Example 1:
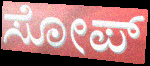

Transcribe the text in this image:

ಸೋಪ್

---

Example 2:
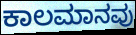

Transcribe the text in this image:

ಕಾಲಮಾನವು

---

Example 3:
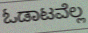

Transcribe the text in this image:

ಓಡಾಟವೆಲ್ಲ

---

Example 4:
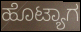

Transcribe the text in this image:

ಹೊಟ್ಯಾಗ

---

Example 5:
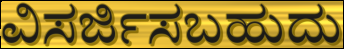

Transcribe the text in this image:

ವಿಸರ್ಜಿಸಬಹುದು